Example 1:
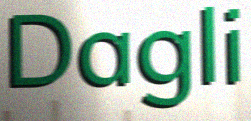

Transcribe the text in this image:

Dagli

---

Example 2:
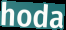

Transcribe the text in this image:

hoda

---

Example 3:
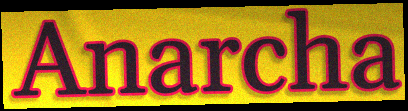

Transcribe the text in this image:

Anarcha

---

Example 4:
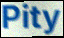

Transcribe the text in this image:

Pity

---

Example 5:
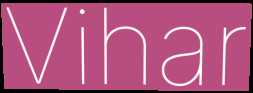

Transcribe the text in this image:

Vihar